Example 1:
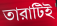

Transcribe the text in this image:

তারাটিই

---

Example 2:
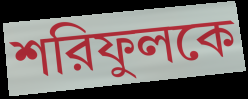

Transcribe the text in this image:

শরিফুলকে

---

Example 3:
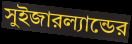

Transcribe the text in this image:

সুইজারল্যান্ডের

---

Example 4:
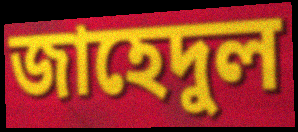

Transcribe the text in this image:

জাহেদুল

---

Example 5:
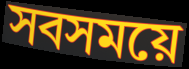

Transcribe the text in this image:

সবসময়ে